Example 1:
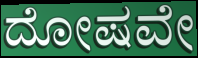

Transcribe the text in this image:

ದೋಷವೇ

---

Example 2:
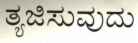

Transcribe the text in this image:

ತ್ಯಜಿಸುವುದು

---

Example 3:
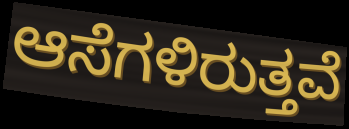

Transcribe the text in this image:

ಆಸೆಗಳಿರುತ್ತವೆ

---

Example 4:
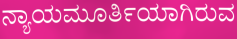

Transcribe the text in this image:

ನ್ಯಾಯಮೂರ್ತಿಯಾಗಿರುವ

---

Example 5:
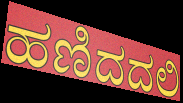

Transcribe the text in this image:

ಹಣಿದದಲಿ